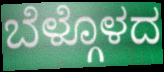
ಬೆಳ್ಗೊಳದ